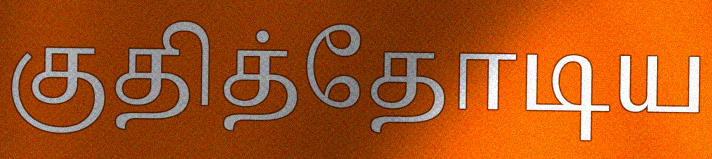
குதித்தோடிய